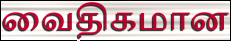
வைதிகமான